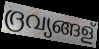
ദ്രവ്യങ്ങള്